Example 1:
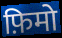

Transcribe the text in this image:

फ़िमो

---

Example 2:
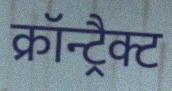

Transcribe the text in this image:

क्रॉन्ट्रैक्ट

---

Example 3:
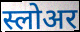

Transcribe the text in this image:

स्लोअर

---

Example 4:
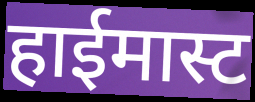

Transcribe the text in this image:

हाईमास्ट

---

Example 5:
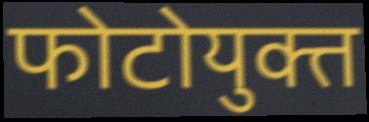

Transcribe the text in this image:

फोटोयुक्त